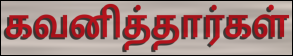
கவனித்தார்கள்